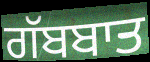
ਗੱਬਬਾਤ